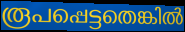
രൂപപ്പെട്ടതെങ്കിൽ